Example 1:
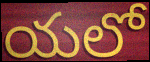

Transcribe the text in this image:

యలో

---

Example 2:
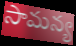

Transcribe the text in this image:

సామన్య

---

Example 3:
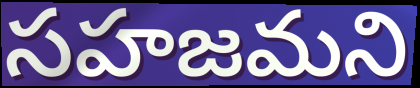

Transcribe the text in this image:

సహజమని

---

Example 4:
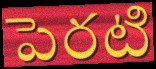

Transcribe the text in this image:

పెరటి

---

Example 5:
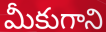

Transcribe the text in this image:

మీకుగాని